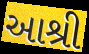
આશ્રી